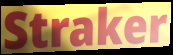
Straker